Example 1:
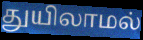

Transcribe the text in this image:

துயிலாமல்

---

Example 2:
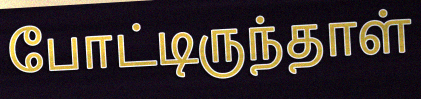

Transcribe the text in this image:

போட்டிருந்தாள்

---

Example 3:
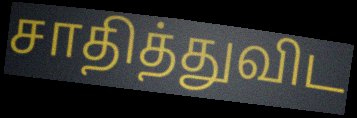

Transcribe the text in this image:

சாதித்துவிட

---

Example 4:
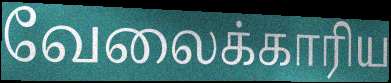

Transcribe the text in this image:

வேலைக்காரிய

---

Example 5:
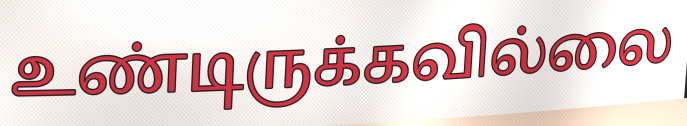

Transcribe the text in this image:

உண்டிருக்கவில்லை